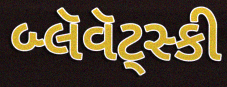
બ્લૅવૅટ્સ્કી